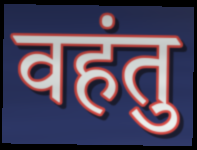
वहंतु